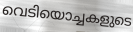
വെടിയൊച്ചകളുടെ